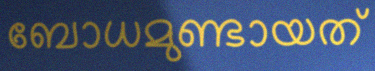
ബോധമുണ്ടായത്